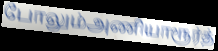
போலும்அணியாரூர்த்